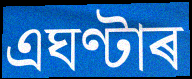
এঘণ্টাৰ